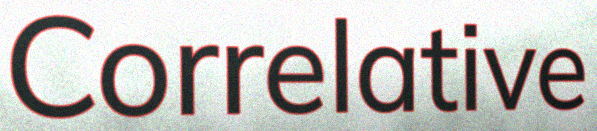
Correlative